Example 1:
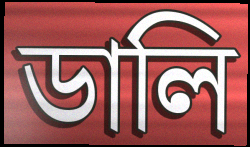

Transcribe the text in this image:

ডালি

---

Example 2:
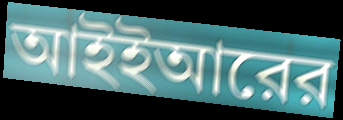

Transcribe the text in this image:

আইইআরের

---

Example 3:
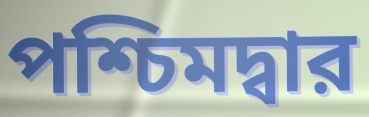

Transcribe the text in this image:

পশ্চিমদ্বার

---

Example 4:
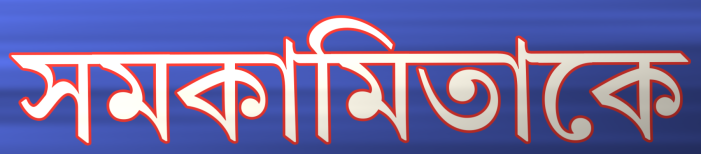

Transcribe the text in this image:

সমকামিতাকে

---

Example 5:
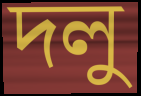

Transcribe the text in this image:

দলু